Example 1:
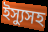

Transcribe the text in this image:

ইস্যুসহ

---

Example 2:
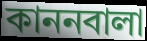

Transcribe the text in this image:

কাননবালা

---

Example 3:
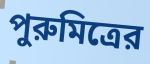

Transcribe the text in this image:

পুরুমিত্রের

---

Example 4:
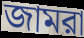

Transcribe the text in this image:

জামরা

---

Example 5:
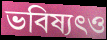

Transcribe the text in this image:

ভবিষ্যৎও